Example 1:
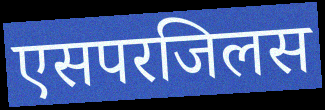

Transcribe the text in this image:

एसपरजिलस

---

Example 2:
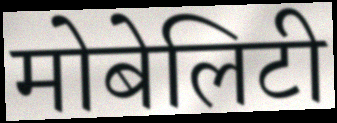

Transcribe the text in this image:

मोबेलिटी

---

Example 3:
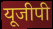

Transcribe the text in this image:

यूजीपी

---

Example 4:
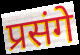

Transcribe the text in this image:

प्रसंगे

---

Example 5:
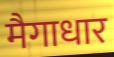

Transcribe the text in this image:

मैगाधार